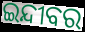
ଇନ୍ଦୀବର